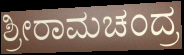
ಶ್ರೀರಾಮಚಂದ್ರ